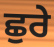
ਛੁਰੇ